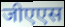
जीएएस